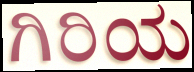
ಗಿರಿಯ